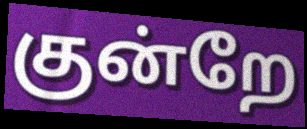
குன்றே